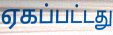
ஏகப்பட்டது